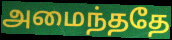
அமைந்ததே